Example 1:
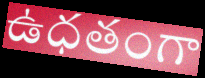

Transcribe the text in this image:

ఉధతంగా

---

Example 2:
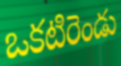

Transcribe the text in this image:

ఒకటిరెండు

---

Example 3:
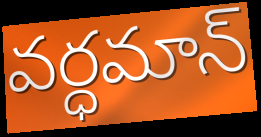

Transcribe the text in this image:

వర్ధమాన్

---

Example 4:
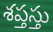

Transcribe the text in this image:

శప్తస్తు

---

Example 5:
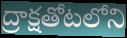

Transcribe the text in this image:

ద్రాక్షతోటలోని